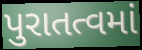
પુરાતત્વમાં